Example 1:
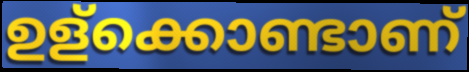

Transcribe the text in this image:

ഉള്ക്കൊണ്ടാണ്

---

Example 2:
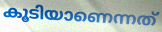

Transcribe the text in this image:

കൂടിയാണെന്നത്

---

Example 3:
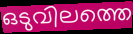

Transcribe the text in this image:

ഒടുവിലത്തെ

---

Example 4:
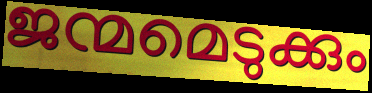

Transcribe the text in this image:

ജന്മമെടുക്കും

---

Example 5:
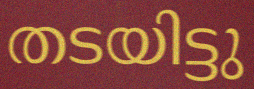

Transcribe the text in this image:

തടയിട്ടു